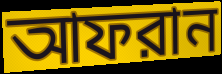
আফরান